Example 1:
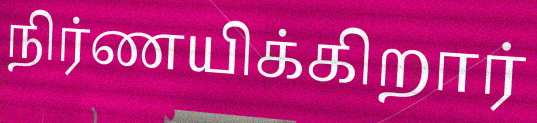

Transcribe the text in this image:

நிர்ணயிக்கிறார்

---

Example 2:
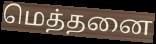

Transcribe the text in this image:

மெத்தனை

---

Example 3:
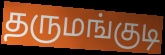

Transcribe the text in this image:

தருமங்குடி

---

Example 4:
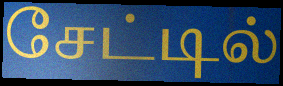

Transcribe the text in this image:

சேட்டில்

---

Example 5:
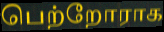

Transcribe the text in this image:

பெற்றோராக